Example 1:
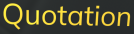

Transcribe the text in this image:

Quotation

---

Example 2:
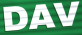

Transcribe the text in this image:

DAV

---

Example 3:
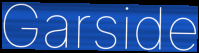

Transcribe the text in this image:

Garside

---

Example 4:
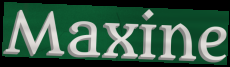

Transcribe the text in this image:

Maxine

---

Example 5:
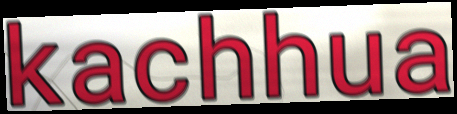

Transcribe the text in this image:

kachhua